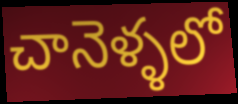
చానెళ్ళలో